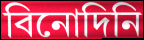
বিনোদিনি